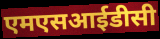
एमएसआईडीसी